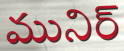
మునిర్